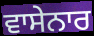
ਵਾਸੇਨਾਰ